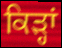
ਕਿੜ੍ਹਾਂ